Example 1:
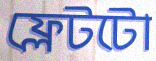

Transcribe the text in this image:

ফ্লেটটো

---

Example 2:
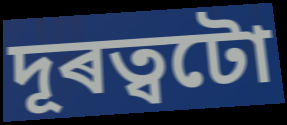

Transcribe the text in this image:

দূৰত্বটো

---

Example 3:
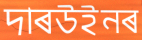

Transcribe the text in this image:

দাৰউইনৰ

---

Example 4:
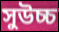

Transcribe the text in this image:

সুউচ্চ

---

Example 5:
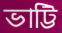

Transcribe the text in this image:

ভাট্টি